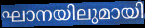
ഘാനയിലുമായി